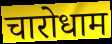
चारोधाम